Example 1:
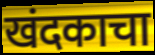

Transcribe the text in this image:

खंदकाचा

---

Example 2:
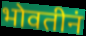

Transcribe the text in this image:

भोवतीनं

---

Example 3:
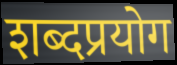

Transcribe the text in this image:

शब्दप्रयोग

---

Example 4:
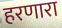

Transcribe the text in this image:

हरणारा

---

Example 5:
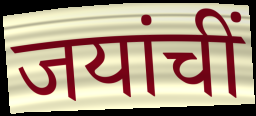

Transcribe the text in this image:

जयांचीं